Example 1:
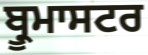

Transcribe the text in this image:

ਬ੍ਰੂਮਾਸਟਰ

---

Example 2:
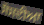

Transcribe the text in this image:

ਸੋਸਦੀਆ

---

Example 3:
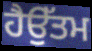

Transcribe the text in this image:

ਹੈਉੱਤਮ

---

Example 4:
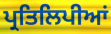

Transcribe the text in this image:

ਪ੍ਰਤਿਲਿਪੀਆਂ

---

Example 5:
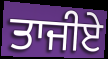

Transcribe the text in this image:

ਤਾਜੀਏ